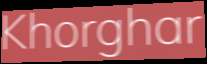
Khorghar